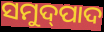
ସମୁଦ୍‌ପାଦ